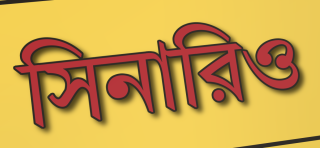
সিনারিও